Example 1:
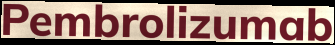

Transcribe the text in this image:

Pembrolizumab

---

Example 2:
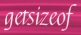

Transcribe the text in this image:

getsizeof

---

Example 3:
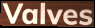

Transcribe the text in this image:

Valves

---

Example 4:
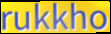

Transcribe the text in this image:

rukkho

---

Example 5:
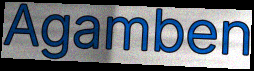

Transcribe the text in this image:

Agamben